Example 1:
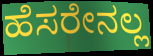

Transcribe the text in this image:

ಹೆಸರೇನಲ್ಲ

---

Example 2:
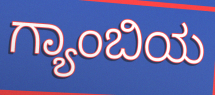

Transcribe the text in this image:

ಗ್ಯಾಂಬಿಯ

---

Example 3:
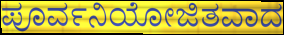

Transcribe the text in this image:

ಪೂರ್ವನಿಯೋಜಿತವಾದ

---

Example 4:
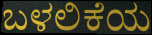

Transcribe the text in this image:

ಬಳಲಿಕೆಯ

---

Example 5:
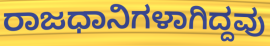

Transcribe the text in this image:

ರಾಜಧಾನಿಗಳಾಗಿದ್ದವು